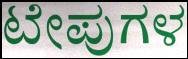
ಟೇಪುಗಳ